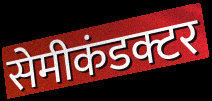
सेमीकंडक्टर